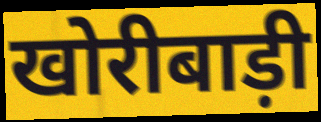
खोरीबाड़ी